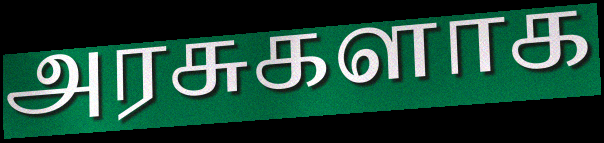
அரசுகளாக